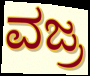
ವಜ್ರ